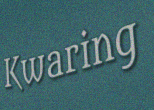
Kwaring